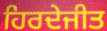
ਹਿਰਦੇਜੀਤ